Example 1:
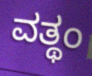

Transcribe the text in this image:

ವತ್ಥಂ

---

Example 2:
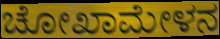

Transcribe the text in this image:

ಚೋಖಾಮೇಳನ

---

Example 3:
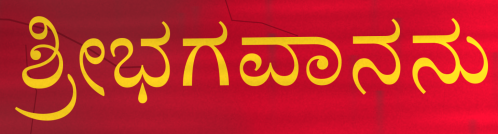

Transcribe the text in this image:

ಶ್ರೀಭಗವಾನನು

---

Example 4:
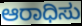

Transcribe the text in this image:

ಆರಾಧಿಸು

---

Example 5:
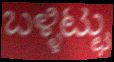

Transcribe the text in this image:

ಬಳ್ಳಿಟ್ಟು